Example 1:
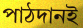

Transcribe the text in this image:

পাঠদানই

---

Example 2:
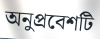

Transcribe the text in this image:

অনুপ্রবেশটি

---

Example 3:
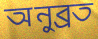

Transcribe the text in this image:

অনুব্রত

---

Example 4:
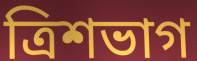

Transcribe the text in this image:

ত্রিশভাগ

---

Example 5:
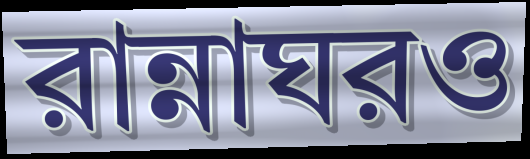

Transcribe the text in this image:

রান্নাঘরও